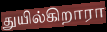
துயில்கிறாரா